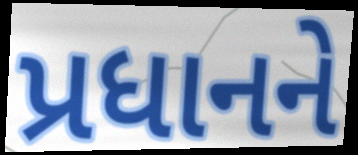
પ્રધાનને